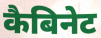
कैबिनेट